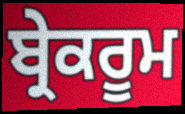
ਬ੍ਰੇਕਰੂਮ